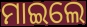
ମାଇଲେ